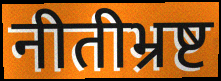
नीतीभ्रष्ट